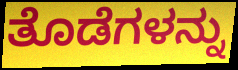
ತೊಡೆಗಳನ್ನು